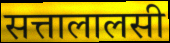
सत्तालालसी